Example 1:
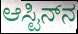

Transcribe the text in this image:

ಆಸ್ಟಿನ್‌ನ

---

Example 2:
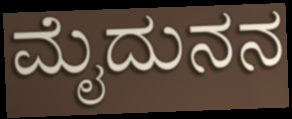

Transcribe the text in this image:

ಮೈದುನನ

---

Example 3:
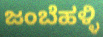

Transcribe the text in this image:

ಜಂಬೆಹಳ್ಳಿ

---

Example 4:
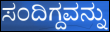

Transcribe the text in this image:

ಸಂದಿಗ್ದವನ್ನು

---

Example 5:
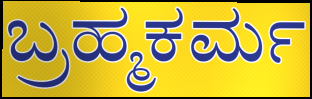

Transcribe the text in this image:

ಬ್ರಹ್ಮಕರ್ಮ